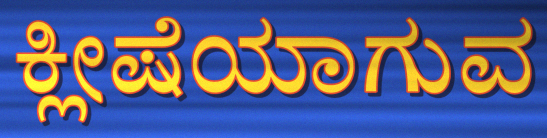
ಕ್ಲೀಷೆಯಾಗುವ